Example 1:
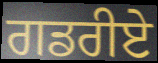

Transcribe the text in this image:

ਗਡਰੀਏ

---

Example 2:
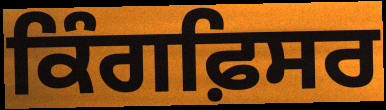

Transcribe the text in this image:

ਕਿੰਗਫ਼ਿਸਰ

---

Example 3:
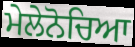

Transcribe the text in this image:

ਮੇਲੇਨੋਚਿਆ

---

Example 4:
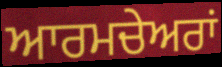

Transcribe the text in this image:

ਆਰਮਚੇਅਰਾਂ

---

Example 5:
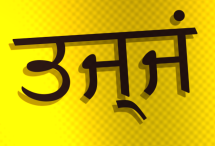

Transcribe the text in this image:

ਤਜ੍ਜਂ